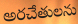
అరచేతులను